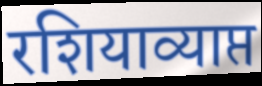
रशियाव्याप्त